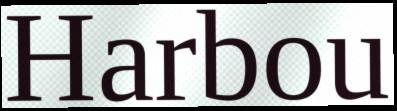
Harbou